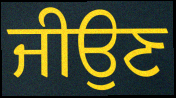
ਜੀਉਣ